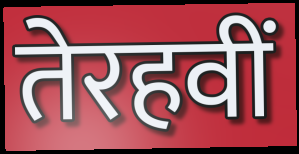
तेरहवीं